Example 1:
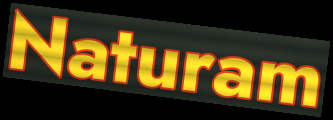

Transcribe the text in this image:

Naturam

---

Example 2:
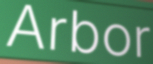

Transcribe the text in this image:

Arbor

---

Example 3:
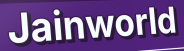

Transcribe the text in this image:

Jainworld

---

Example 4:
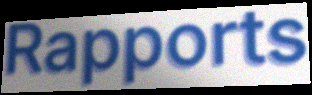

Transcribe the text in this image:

Rapports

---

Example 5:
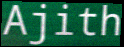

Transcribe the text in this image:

Ajith